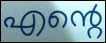
എന്റെ